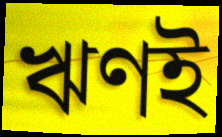
ঋণই